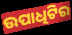
ଉପାଧିଟିର